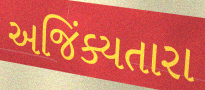
અજિંક્યતારા